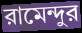
রামেন্দুর